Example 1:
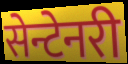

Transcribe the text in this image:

सेन्टेनरी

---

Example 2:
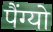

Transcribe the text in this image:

पैंग्यो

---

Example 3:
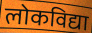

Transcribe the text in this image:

लोकविद्या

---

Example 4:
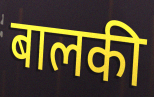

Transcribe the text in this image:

बालकी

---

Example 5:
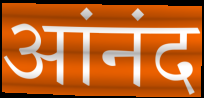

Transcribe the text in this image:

आंनंद